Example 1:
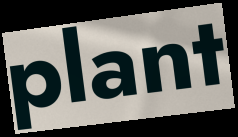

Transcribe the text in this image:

plant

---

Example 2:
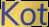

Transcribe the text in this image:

Kot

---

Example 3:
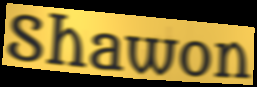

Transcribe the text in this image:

Shawon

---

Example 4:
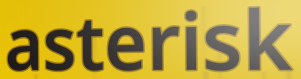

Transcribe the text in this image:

asterisk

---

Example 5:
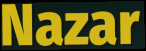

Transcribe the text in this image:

Nazar